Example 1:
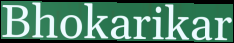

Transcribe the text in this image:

Bhokarikar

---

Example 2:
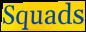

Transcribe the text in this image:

Squads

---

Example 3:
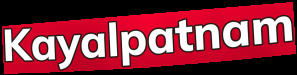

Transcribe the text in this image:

Kayalpatnam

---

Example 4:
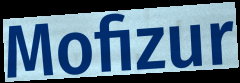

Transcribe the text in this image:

Mofizur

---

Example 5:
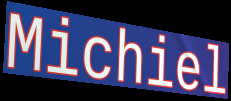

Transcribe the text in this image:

Michiel